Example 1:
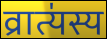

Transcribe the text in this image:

व्रात्य॑स्य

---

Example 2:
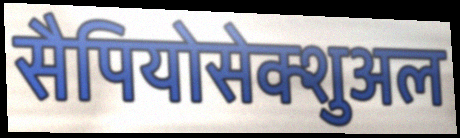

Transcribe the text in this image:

सैपियोसेक्शुअल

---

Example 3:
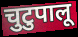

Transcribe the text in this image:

चुटुपालू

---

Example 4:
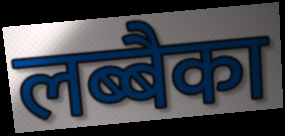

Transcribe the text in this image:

लब्बैका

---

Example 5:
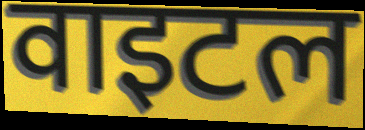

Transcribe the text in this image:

वाइटल